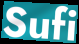
Sufi